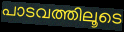
പാടവത്തിലൂടെ